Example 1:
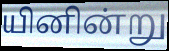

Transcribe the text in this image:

யினின்று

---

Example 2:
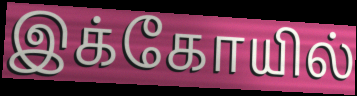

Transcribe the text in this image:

இக்கோயில்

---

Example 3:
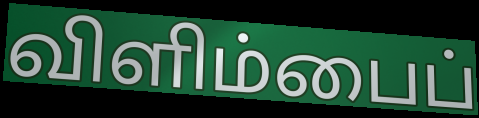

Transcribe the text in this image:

விளிம்பைப்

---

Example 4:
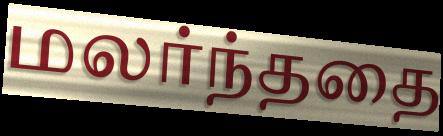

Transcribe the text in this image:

மலர்ந்ததை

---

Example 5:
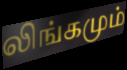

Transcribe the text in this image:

லிங்கமும்